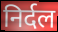
निर्दल